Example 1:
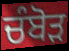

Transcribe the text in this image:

ਚੰਬੋੜ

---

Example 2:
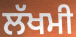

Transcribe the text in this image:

ਲੱਖਮੀ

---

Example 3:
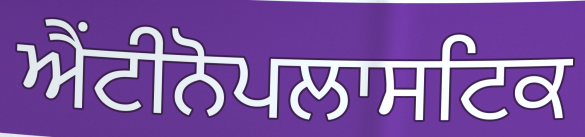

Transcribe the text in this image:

ਐਂਟੀਨੋਪਲਾਸਟਿਕ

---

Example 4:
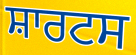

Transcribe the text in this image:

ਸ਼ਾਰਟਸ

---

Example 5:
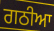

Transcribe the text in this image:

ਗਠੀਆ